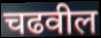
चढवील